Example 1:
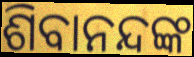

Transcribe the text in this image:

ଶିବାନନ୍ଦଙ୍କ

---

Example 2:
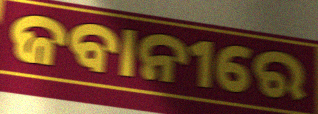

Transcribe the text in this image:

ଜବାନୀରେ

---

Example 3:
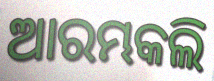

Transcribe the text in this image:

ଆରମ୍ଭକଲି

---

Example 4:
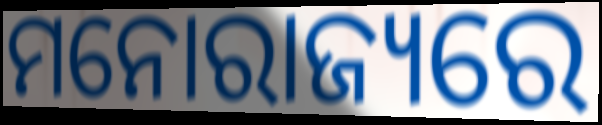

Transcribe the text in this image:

ମନୋରାଜ୍ୟରେ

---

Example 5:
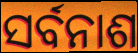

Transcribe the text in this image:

ସର୍ବନାଶ